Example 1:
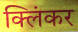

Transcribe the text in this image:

क्लिंकर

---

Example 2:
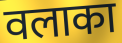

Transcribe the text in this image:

वलाका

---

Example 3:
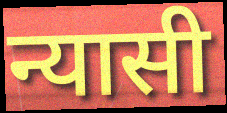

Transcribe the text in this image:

न्यासी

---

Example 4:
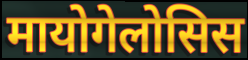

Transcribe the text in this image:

मायोगेलोसिस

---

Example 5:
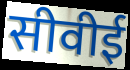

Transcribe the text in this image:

सीवीई